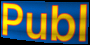
Publ